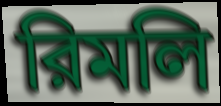
রিমলি